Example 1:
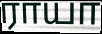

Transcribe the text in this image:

ராயா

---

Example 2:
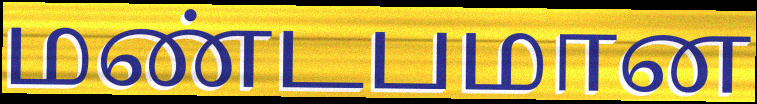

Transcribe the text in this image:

மண்டபமான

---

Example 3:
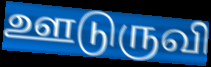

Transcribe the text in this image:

ஊடுருவி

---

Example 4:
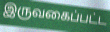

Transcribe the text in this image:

இருவகைப்பட்ட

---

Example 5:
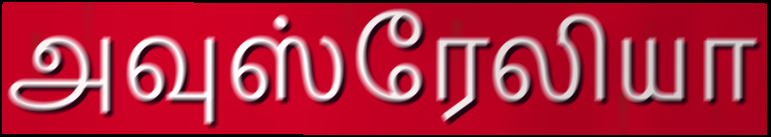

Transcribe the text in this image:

அவுஸ்ரேலியா